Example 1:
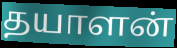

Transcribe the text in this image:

தயாளன்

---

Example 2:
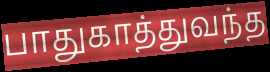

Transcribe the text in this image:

பாதுகாத்துவந்த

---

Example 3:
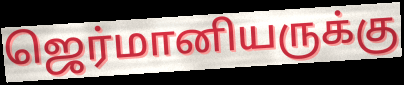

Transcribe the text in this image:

ஜெர்மானியருக்கு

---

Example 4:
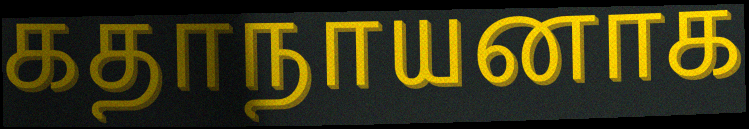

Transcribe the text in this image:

கதாநாயனாக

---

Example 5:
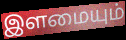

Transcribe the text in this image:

இளமையும்